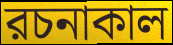
রচনাকাল